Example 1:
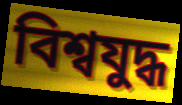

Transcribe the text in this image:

বিশ্বযুদ্ধ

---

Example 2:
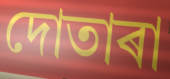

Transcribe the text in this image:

দোতাৰা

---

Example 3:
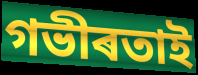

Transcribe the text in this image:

গভীৰতাই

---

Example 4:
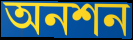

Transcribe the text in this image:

অনশন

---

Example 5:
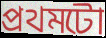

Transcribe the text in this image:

প্ৰথমটো